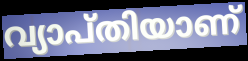
വ്യാപ്തിയാണ്